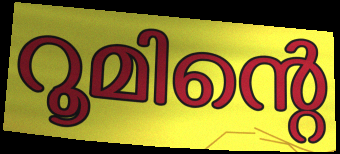
റൂമിന്റെ